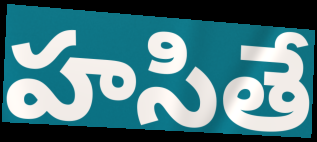
హసితే